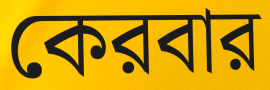
কেরবার